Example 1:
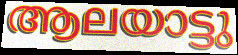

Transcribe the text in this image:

ആലയാട്ടു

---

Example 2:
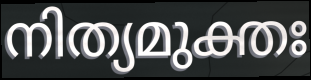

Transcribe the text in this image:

നിത്യമുക്തഃ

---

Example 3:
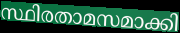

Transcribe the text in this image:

സ്ഥിരതാമസമാക്കി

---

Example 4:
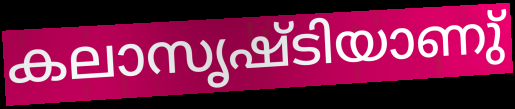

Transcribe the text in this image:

കലാസൃഷ്ടിയാണു്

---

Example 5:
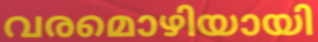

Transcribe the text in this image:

വരമൊഴിയായി